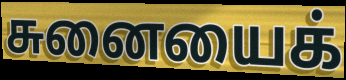
சுனையைக்